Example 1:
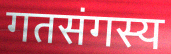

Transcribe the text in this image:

गतसंगस्य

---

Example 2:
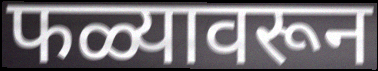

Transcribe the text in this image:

फळ्यावरून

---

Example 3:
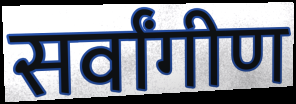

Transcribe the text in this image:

सर्वांगीण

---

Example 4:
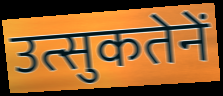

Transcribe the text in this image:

उत्सुकतेनें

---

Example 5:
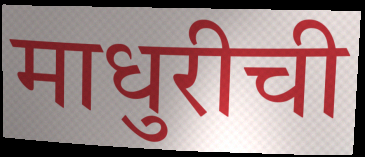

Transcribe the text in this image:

माधुरीची